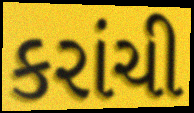
કરાંચી